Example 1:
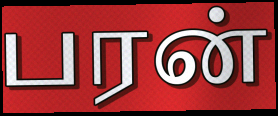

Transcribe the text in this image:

பரன்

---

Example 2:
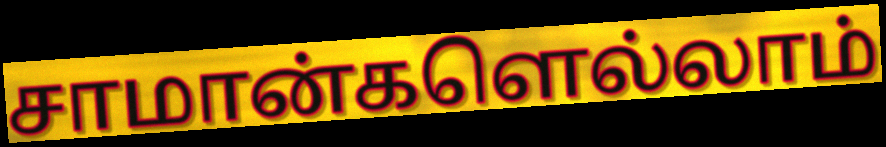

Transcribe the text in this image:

சாமான்களெல்லாம்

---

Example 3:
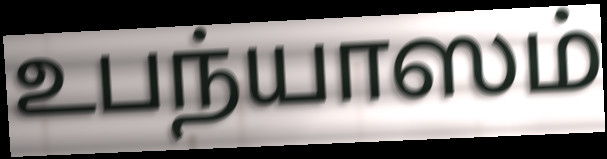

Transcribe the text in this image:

உபந்யாஸம்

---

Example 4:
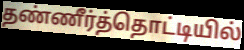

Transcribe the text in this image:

தண்ணீர்த்தொட்டியில்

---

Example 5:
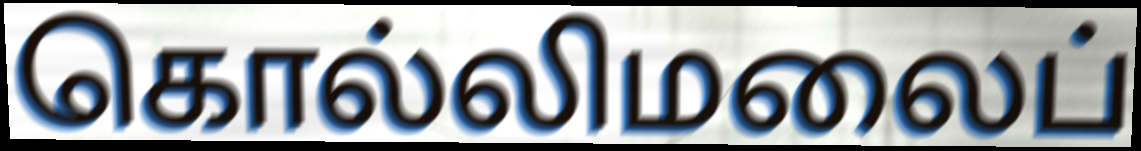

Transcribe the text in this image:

கொல்லிமலைப்